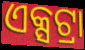
ଏକ୍ସଟ୍ରା